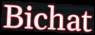
Bichat